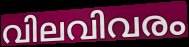
വിലവിവരം